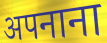
अपनाना